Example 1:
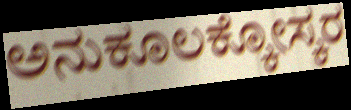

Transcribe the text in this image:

ಅನುಕೂಲಕ್ಕೋಸ್ಕರ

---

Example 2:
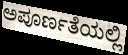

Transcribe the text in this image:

ಅಪೂರ್ಣತೆಯಲ್ಲಿ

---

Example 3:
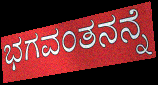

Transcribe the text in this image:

ಭಗವಂತನನ್ನೆ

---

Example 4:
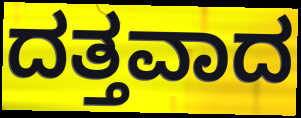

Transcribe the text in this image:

ದತ್ತವಾದ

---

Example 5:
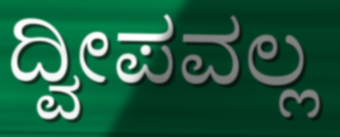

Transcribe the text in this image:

ದ್ವೀಪವಲ್ಲ